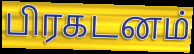
பிரகடனம்